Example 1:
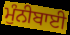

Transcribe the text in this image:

ਮੁੰਨੀਬਾਈ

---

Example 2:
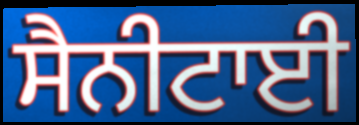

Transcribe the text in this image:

ਸੈਨੀਟਾਈ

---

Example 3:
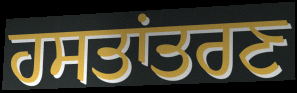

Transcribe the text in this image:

ਹਸਤਾਂਤਰਣ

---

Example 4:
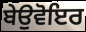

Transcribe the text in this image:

ਬੇਉਵੋਇਰ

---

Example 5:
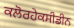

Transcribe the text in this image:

ਕਲੋਰਹੇਕਸੀਡੀਨ